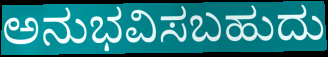
ಅನುಭವಿಸಬಹುದು